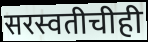
सरस्वतीचीही